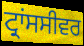
ਟ੍ਰਾਂਸਸੀਵਰ